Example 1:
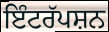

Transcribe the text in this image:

ਇੰਟਰੱਪਸ਼ਨ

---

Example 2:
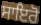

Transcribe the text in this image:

ਸਾਇਰੋ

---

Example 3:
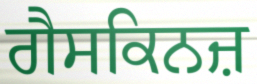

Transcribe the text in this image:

ਗੈਸਕਿਨਜ਼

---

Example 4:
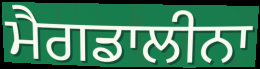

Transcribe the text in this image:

ਮੈਗਡਾਲੀਨਾ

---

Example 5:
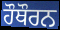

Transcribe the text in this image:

ਹੌਥੌਰਨ